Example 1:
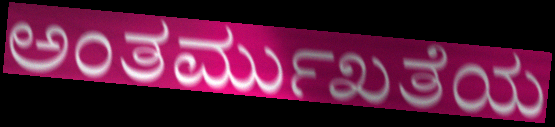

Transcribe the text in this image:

ಅಂತರ್ಮುಖತೆಯ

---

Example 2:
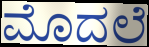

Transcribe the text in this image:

ಮೊದಲೆ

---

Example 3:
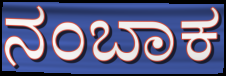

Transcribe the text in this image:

ನಂಬಾಕ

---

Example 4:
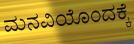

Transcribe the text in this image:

ಮನವಿಯೊಂದಕ್ಕೆ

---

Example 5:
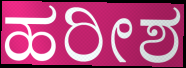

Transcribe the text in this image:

ಹರೀಶ